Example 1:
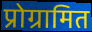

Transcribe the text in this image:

प्रोग्रामित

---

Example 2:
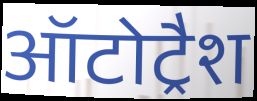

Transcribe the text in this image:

ऑटोट्रैश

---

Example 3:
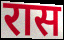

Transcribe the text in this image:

रास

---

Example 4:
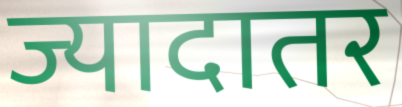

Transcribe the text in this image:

ज्‍यादातर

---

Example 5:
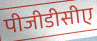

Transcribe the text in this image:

पीजीडीसीए